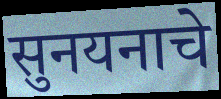
सुनयनाचे